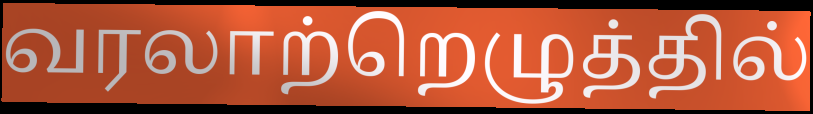
வரலாற்றெழுத்தில்